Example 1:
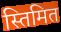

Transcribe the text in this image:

स्तिमित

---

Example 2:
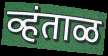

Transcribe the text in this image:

व्हंताळ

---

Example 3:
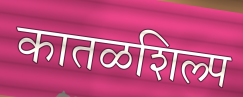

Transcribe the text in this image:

कातळशिल्प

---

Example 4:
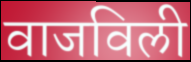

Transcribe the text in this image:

वाजविली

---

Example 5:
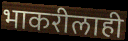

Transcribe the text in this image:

भाकरीलाही